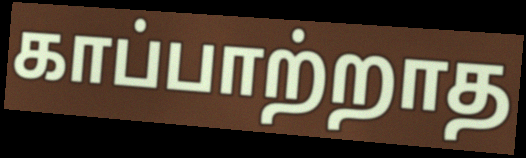
காப்பாற்றாத